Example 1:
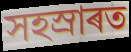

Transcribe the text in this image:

সহস্ৰাৰত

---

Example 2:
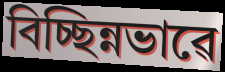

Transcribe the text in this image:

বিচ্ছিন্নভাৱে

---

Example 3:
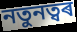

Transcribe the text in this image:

নতুনত্বৰ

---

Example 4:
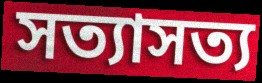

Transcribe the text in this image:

সত্যাসত্য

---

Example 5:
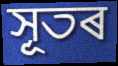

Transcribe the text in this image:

সূতৰ